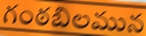
గంఠబిలమున